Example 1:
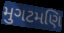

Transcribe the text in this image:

મુગટમણિ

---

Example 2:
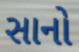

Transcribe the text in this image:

સાનો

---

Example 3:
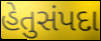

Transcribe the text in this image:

હેતુસંપદા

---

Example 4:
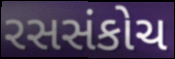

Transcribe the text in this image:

રસસંકોચ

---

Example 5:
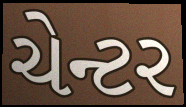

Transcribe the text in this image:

ચેન્ટર